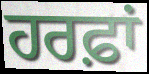
ਹਰਫ਼ਾਂ